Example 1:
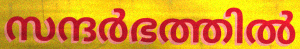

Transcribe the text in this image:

സന്ദർഭത്തിൽ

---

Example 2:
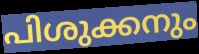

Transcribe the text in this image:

പിശുക്കനും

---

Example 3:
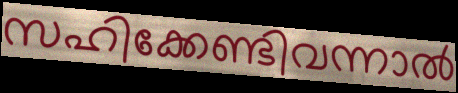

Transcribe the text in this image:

സഹിക്കേണ്ടിവന്നാൽ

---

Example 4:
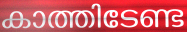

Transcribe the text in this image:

കാത്തിടേണ്ട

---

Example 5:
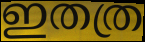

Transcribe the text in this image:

ഇതത്ര